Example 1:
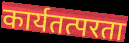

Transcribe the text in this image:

कार्यतत्परता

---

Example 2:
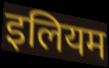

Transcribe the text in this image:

इलियम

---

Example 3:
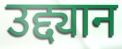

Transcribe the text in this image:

उद्द्यान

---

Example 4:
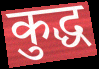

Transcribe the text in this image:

कुद्ध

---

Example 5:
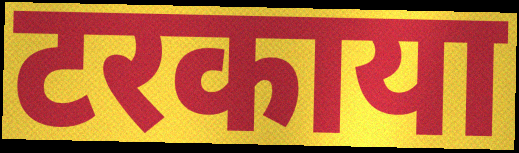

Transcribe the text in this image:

टरकाया